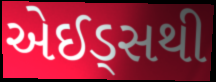
એઈડ્સથી